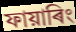
ফায়াৰিং